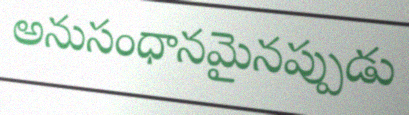
అనుసంధానమైనప్పుడు